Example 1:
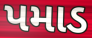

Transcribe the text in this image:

પમાડ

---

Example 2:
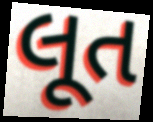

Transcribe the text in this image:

લૂત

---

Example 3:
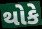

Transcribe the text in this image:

થોકે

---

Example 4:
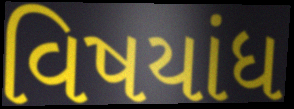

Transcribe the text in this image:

વિષયાંધ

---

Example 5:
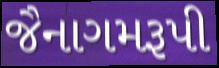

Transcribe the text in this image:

જૈનાગમરૂપી